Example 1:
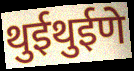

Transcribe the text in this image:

थुईथुईणे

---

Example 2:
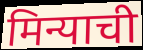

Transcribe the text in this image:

मिन्याची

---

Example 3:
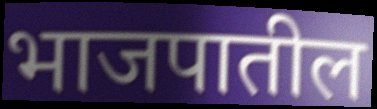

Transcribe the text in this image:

भाजपातील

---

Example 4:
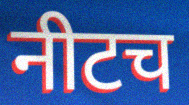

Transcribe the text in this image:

नीटच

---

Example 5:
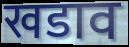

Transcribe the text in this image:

खडाव